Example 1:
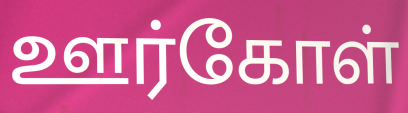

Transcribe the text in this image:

ஊர்கோள்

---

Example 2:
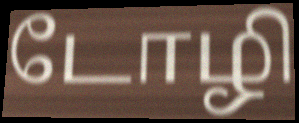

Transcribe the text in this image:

டோழி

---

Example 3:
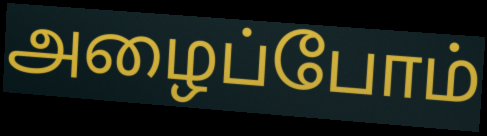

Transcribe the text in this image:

அழைப்போம்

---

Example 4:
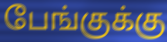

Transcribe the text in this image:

பேங்குக்கு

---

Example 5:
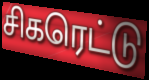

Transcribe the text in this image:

சிகரெட்டு